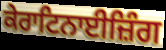
ਕੇਰਾਟਿਨਾਈਜ਼ਿੰਗ